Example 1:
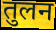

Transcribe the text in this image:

तुलन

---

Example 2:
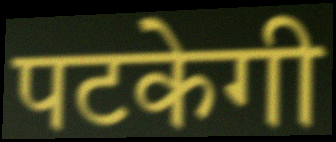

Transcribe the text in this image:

पटकेगी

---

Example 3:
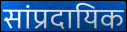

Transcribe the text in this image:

सांप्रदायिक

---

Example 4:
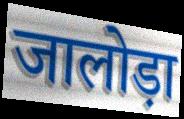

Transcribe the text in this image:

जालोड़ा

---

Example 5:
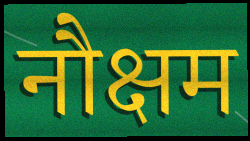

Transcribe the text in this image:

नौक्षम